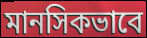
মানসিকভাবে